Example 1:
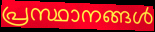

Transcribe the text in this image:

പ്രസ്ഥാനങ്ങൾ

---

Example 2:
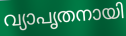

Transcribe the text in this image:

വ്യാപൃതനായി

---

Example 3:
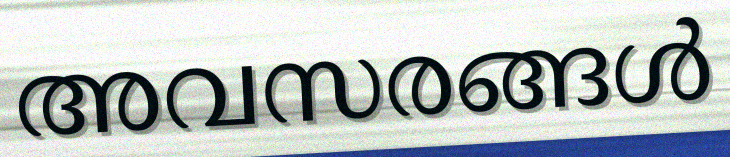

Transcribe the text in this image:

അവസരങ്ങൾ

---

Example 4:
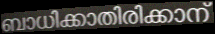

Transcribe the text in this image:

ബാധിക്കാതിരിക്കാന്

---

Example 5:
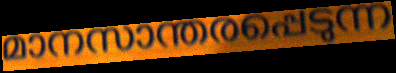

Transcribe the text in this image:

മാനസാന്തരപ്പെടുന്ന